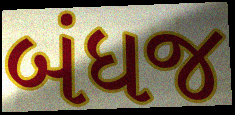
બંધજ